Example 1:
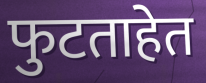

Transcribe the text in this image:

फुटताहेत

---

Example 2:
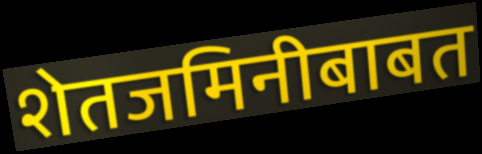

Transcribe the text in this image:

शेतजमिनीबाबत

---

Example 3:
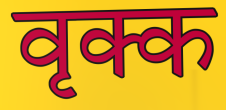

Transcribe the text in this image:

वृक्क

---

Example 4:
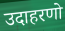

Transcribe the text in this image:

उदाहरणो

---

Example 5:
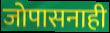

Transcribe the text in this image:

जोपासनाही